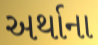
અર્થાના